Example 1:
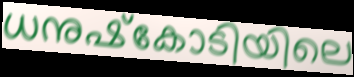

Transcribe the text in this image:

ധനുഷ്‌കോടിയിലെ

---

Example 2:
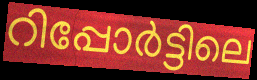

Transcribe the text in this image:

റിപ്പോർട്ടിലെ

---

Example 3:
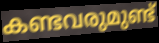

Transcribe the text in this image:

കണ്ടവരുമുണ്ട്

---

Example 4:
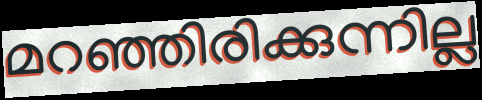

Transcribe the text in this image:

മറഞ്ഞിരിക്കുന്നില്ല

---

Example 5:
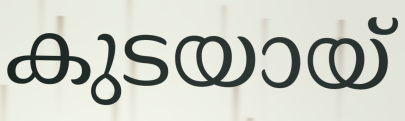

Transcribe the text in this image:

കുടയായ്